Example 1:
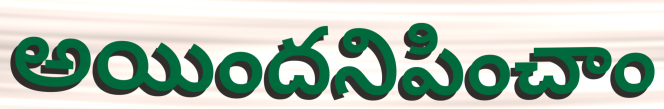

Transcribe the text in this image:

అయిందనిపించాం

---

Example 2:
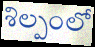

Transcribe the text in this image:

శిల్పంలో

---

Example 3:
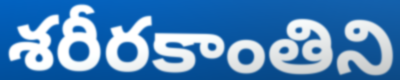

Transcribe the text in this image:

శరీరకాంతిని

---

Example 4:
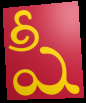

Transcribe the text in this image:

షీ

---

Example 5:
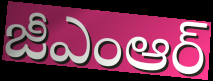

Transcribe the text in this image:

జీఎంఆర్